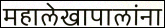
महालेखापालांना